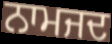
ਨਾਮਜਦ